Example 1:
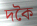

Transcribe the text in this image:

দকৈ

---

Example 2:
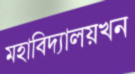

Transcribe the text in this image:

মহাবিদ্যালয়খন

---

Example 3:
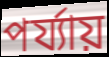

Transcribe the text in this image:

পৰ্য্যায়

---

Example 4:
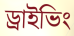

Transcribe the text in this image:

ড্ৰাইভিং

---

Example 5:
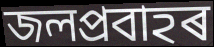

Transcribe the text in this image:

জলপ্ৰবাহৰ